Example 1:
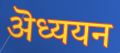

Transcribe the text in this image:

ऄध्ययन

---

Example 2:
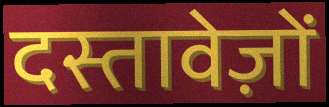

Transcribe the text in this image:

दस्तावेज़ों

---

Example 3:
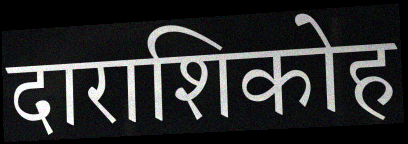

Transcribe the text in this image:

दाराशिकोह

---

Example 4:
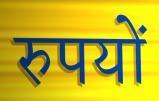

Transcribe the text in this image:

रुपयों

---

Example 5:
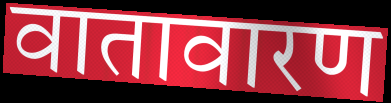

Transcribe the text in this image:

वातावारण